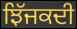
ਝਿੱਜਕਦੀ